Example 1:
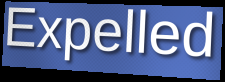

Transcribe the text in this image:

Expelled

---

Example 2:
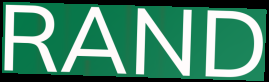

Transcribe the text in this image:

RAND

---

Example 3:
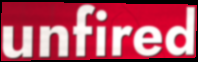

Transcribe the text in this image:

unfired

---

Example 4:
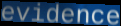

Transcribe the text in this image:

evidence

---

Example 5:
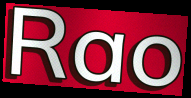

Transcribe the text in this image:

Rao